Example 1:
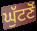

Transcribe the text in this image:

ਘੁੱਟਣੋਂ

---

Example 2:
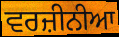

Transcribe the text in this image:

ਵਰਜ਼ੀਨੀਆ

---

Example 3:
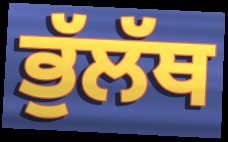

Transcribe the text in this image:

ਭੁੱਲੱਥ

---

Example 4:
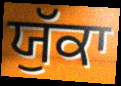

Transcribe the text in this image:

ਯੁੱਕਾ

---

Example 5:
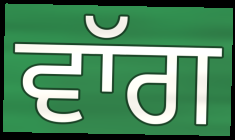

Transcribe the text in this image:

ਵਾੱਗ